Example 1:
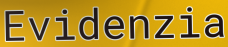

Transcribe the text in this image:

Evidenzia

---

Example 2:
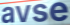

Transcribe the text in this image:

avse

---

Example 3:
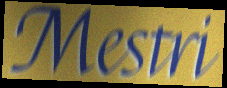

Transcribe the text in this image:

Mestri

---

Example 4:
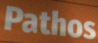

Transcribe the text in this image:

Pathos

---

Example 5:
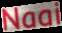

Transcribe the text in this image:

Naai